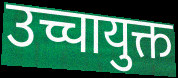
उच्चायुक्त